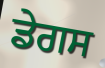
ਡੇਗਸ